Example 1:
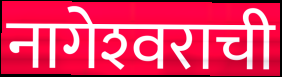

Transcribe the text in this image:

नागेश्‍वराची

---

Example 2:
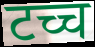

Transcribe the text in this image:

टच्च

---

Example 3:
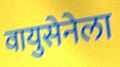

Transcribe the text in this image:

वायुसेनेला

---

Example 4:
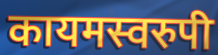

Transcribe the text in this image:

कायमस्वरुपी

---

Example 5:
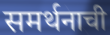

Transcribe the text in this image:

समर्थनाची